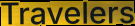
Travelers